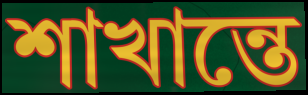
শাখান্তে